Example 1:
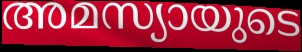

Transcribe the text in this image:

അമസ്യായുടെ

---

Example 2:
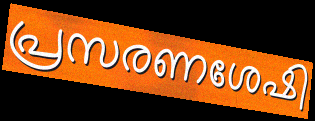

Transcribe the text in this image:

പ്രസരണശേഷി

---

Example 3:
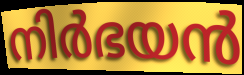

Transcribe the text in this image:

നിർഭയൻ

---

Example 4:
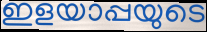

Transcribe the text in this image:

ഇളയാപ്പയുടെ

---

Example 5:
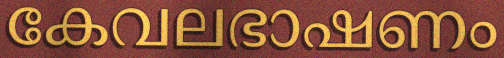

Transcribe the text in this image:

കേവലഭാഷണം